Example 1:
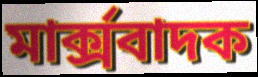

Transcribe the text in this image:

মাৰ্ক্সবাদক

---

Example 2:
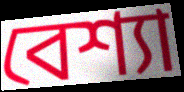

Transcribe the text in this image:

বেশ্যা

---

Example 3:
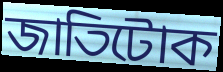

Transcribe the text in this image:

জাতিটোক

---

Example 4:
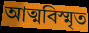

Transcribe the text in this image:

আত্মবিস্মৃত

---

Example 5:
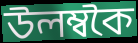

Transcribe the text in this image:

উলম্বকৈ